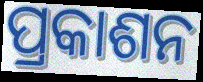
ପ୍ରକାଶନ